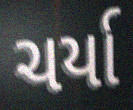
ચર્યા